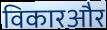
विकारऔर